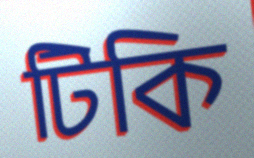
টিকি